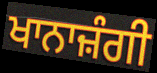
ਖਾਨਾਜ਼ੰਗੀ